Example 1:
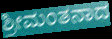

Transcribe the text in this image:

ಶ್ರೀಮಂತನಾದ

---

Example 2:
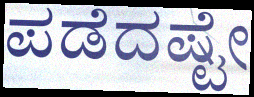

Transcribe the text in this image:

ಪಡೆದಷ್ಟೇ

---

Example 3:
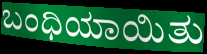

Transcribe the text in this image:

ಬಂಧಿಯಾಯಿತು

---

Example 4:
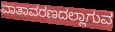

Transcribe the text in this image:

ವಾತಾವರಣದಲ್ಲಾಗುವ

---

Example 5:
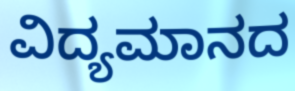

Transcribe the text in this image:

ವಿದ್ಯಮಾನದ